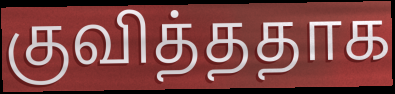
குவித்ததாக